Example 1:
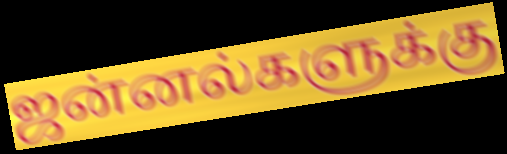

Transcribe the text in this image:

ஜன்னல்களுக்கு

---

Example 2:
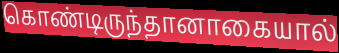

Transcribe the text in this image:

கொண்டிருந்தானாகையால்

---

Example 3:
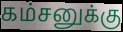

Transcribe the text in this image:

கம்சனுக்கு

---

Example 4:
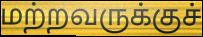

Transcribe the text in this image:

மற்றவருக்குச்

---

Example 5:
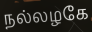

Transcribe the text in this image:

நல்லழகே